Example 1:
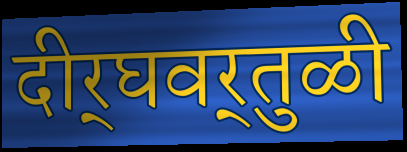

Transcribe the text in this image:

दीर्घवर्तुळी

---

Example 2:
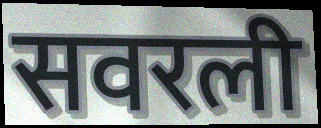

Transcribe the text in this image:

सवरली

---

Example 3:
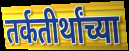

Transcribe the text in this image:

तर्कतीर्थांच्या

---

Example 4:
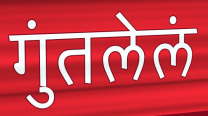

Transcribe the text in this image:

गुंतलेलं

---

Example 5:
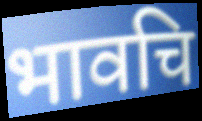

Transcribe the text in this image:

भावचि